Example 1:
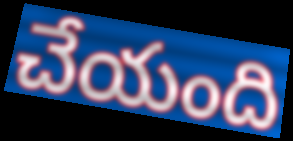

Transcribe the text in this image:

చేయంది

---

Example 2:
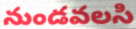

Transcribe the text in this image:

నుండవలసి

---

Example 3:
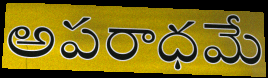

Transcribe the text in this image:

అపరాధమే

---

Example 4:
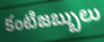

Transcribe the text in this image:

కంటిజబ్బులు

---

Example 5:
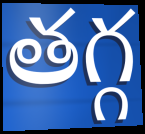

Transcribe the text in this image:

తగ్గ